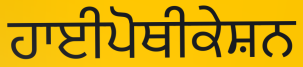
ਹਾਈਪੋਥੀਕੇਸ਼ਨ